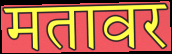
मतावर